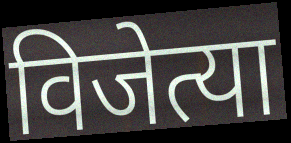
विजेत्या